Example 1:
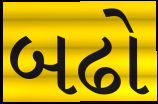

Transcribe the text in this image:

બઢો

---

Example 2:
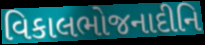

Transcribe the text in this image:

વિકાલભોજનાદીનિ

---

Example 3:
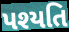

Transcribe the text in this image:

પશ્યતિ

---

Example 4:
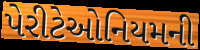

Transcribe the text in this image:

પેરીટેઓનિયમની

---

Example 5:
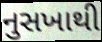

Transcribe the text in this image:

નુસખાથી